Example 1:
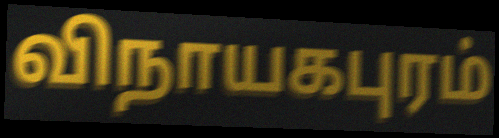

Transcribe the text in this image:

விநாயகபுரம்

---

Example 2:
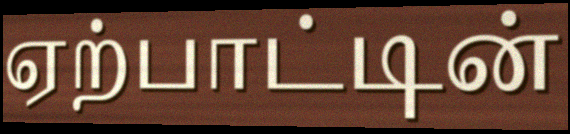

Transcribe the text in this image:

ஏற்பாட்டின்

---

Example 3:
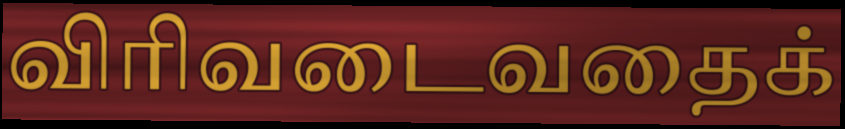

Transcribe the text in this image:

விரிவடைவதைக்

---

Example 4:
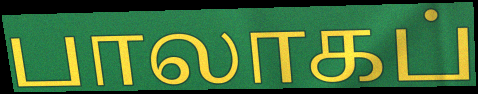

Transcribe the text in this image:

பாலாகப்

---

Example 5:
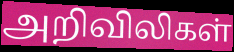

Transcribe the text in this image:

அறிவிலிகள்